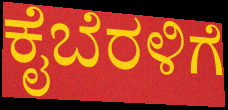
ಕೈಬೆರಳಿಗೆ